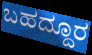
ಬಹದ್ದೂರ